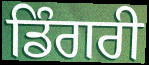
ਡਿੰਗਰੀ